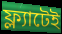
ফ্ল্যাটেই